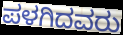
ಪಳಗಿದವರು